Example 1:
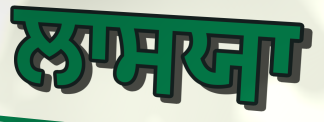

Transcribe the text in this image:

ਲਾਸਯਾ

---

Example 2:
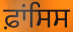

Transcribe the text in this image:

ਫ਼ਾਂਸਿਸ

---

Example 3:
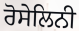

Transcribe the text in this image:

ਰੋਸੇਲਿਨੀ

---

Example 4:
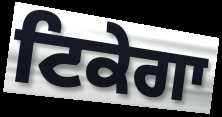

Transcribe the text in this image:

ਟਿਕੇਗਾ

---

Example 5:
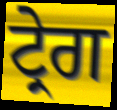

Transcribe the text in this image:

ਟ੍ਰੇਗ